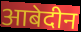
आबेदीन